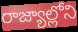
రాజ్యాల్లోని